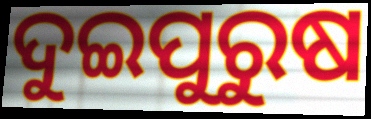
ଦୁଇପୁରୁଷ